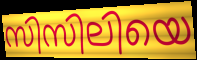
സിസിലിയെ